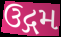
ઉદ્ગમ